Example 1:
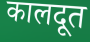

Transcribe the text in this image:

कालदूत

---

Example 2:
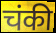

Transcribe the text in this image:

चंकी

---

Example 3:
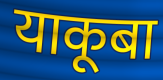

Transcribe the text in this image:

याकूबा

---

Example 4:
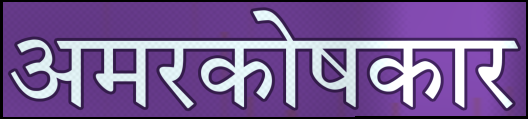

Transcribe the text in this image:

अमरकोषकार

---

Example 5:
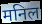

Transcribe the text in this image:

मनिल